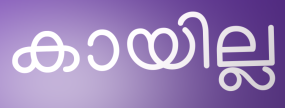
കായില്ല